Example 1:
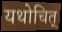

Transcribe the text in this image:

यथोचित्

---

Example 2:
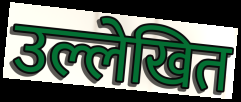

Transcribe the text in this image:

उल्‍लेखित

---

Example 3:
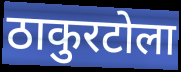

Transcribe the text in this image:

ठाकुरटोला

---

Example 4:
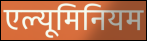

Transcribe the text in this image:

एल्यूमिनियम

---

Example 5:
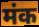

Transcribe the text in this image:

मंक